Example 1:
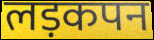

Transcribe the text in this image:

लड़कपन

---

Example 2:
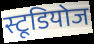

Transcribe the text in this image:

स्टूडियोज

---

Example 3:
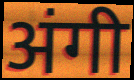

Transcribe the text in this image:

अंगी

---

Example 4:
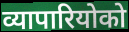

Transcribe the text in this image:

व्यापारियोको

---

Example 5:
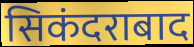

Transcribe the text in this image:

सिकंदराबाद